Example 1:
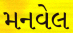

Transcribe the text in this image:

મનવેલ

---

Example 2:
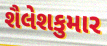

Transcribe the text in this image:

શૈલેશકુમાર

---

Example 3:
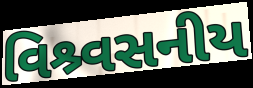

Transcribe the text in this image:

વિશ્ર્વસનીય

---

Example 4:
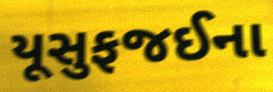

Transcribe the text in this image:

યૂસુફજઈના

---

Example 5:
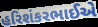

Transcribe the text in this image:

હરિશંકરભાઈએ